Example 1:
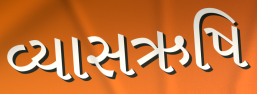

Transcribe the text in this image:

વ્યાસઋષિ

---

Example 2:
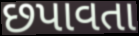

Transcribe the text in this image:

છપાવતા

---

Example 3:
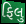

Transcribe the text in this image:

ફિલુ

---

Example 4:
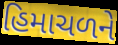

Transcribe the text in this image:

હિમાચળને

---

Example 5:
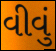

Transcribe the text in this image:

વીવું